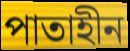
পাতাহীন